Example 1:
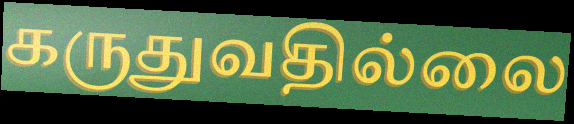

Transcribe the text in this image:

கருதுவதில்லை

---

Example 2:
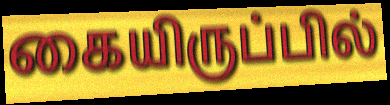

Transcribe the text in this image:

கையிருப்பில்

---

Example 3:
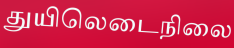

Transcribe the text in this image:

துயிலெடைநிலை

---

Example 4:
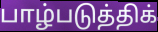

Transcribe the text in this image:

பாழ்படுத்திக்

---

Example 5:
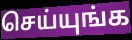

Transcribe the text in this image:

செய்யுங்க